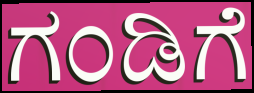
ಗಂಡಿಗೆ